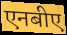
एनबीए